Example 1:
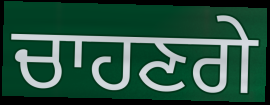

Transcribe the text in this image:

ਚਾਹਣਗੇ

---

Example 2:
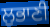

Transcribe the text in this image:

ਲੁਭਾਣੀ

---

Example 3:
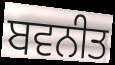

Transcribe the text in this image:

ਬਵਨੀਤ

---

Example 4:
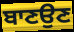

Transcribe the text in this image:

ਬਾਣਉਣ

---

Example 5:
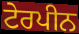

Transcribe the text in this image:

ਟੇਰਪੀਨ